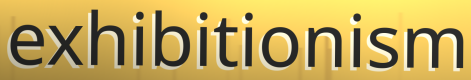
exhibitionism